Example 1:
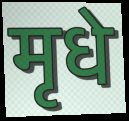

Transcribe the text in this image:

मृधे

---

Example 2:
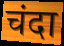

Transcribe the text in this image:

चंदा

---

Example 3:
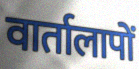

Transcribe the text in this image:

वार्तालापों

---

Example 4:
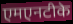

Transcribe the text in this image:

एमएनटीके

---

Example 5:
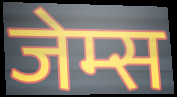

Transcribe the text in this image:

जेम्स